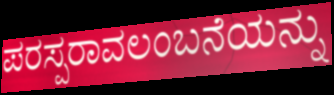
ಪರಸ್ಪರಾವಲಂಬನೆಯನ್ನು